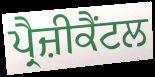
ਪ੍ਰੈਜ਼ੀਕੈਂਟਲ